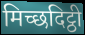
मिच्छदिट्ठी